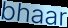
bhaar